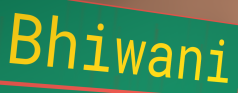
Bhiwani